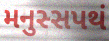
મનુસ્સપથં